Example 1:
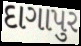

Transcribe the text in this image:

દાગાપુર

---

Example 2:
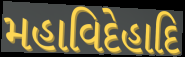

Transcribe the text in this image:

મહાવિદેહાદિ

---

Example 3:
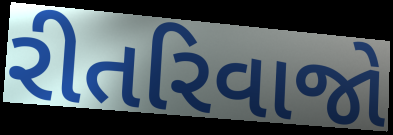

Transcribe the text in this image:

રીતરિવાજો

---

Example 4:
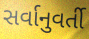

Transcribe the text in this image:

સર્વાનુવર્તી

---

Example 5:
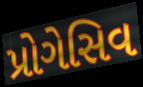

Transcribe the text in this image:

પ્રોગેસિવ